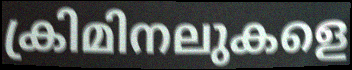
ക്രിമിനലുകളെ